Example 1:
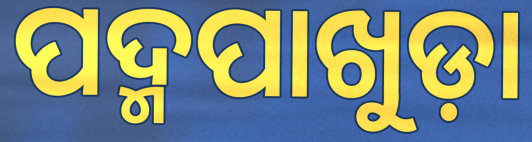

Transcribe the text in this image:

ପଦ୍ମପାଖୁଡ଼ା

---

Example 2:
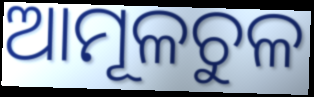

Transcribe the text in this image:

ଆମୂଳଚୁଳ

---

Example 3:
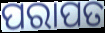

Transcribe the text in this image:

ପରାପତ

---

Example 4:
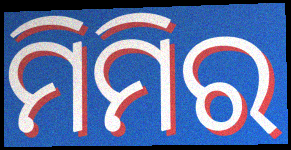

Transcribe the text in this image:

ମିମିର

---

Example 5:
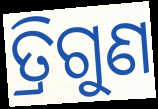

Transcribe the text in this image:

ତ୍ରିଗୁଣ